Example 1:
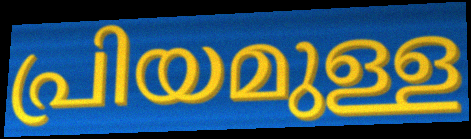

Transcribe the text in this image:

പ്രിയമുള്ള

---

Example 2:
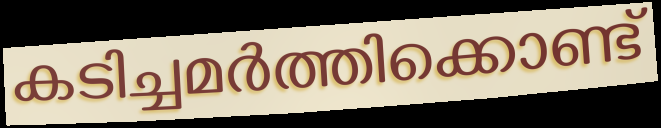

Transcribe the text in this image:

കടിച്ചമർത്തിക്കൊണ്ട്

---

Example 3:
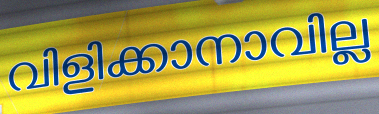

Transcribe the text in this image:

വിളിക്കാനാവില്ല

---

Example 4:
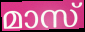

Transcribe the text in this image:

മാസ്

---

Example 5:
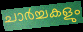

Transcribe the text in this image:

ചാർച്ചകളും